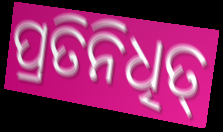
ପ୍ରତିନିଧିତ୍